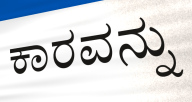
ಕಾರವನ್ನು